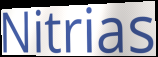
Nitrias